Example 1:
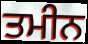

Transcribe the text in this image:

ਤਮੀਨ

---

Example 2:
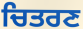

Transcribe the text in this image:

ਚਿਤਰਣ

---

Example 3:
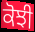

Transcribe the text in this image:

ਕੋਝੀ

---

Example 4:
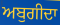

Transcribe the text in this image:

ਅਬੁਗੀਦਾ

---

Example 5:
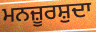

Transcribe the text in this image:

ਮਨਜ਼ੂਰਸ਼ੁਦਾ